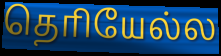
தெரியேல்ல